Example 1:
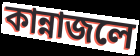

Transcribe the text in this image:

কান্নাজলে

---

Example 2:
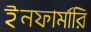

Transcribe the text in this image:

ইনফার্মারি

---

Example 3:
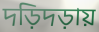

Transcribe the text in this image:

দড়িদড়ায়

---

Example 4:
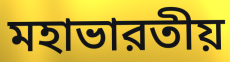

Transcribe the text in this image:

মহাভারতীয়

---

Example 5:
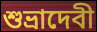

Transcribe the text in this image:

শুভ্রাদেবী